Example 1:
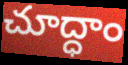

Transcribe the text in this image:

చూద్ధాం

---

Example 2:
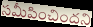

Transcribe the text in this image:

సమీపించిందని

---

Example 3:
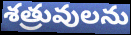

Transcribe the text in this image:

శత్రువులను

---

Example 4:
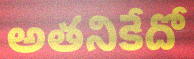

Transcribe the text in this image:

అతనికేదో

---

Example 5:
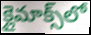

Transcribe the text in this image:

క్లైమాక్స్‌లో